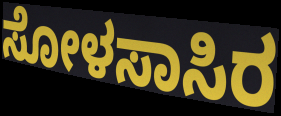
ಸೋಳಸಾಸಿರ